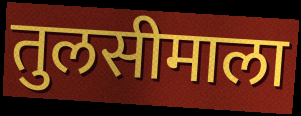
तुलसीमाला